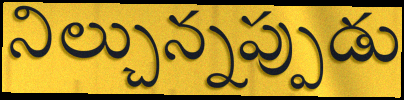
నిల్చున్నప్పుడు